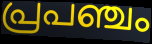
പ്രപഞ്ചം